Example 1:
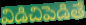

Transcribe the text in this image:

విడిచిపెడితే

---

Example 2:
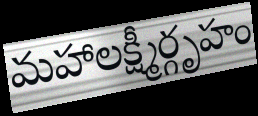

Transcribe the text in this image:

మహాలక్ష్మీర్గృహం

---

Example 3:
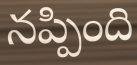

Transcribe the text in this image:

నప్పింది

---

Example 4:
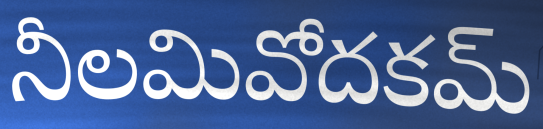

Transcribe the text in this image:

నీలమివోదకమ్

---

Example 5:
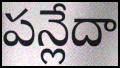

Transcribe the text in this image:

పన్లేదా